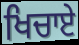
ਖਿਚਾਏ